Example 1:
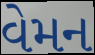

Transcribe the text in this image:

વેમન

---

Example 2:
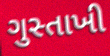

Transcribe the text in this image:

ગુસ્તાખી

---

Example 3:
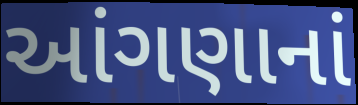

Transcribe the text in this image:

આંગણાનાં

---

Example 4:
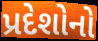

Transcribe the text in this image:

પ્રદેશોનો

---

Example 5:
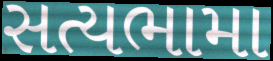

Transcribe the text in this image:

સત્યભામા